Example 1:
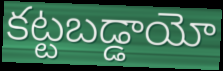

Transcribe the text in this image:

కట్టబడ్డాయో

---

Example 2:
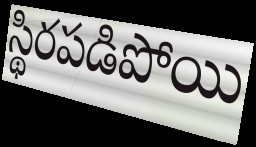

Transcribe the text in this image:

స్థిరపడిపోయి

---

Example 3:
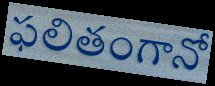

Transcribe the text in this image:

ఫలితంగానో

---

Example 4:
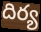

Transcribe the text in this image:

దిర్య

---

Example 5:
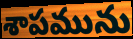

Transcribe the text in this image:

శాపమును